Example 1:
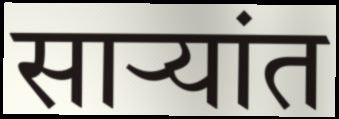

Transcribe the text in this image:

साऱ्यांत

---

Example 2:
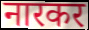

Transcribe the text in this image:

नारकर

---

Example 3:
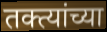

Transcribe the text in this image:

तक्त्यांच्या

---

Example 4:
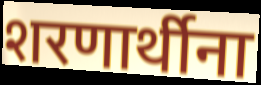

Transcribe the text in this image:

शरणार्थीना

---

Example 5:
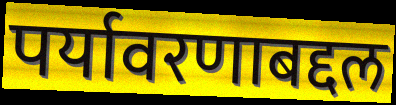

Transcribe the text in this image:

पर्यावरणाबद्दल